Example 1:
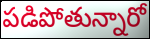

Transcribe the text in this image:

పడిపోతున్నారో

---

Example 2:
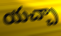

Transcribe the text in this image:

యచ్చా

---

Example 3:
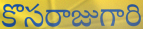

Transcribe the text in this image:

కొసరాజుగారి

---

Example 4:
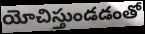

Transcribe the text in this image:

యోచిస్తుండడంతో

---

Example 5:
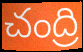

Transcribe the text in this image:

చంద్రి